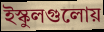
ইস্কুলগুলোয়